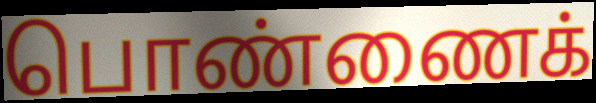
பொண்ணைக்